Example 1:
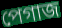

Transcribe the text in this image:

পেগাজ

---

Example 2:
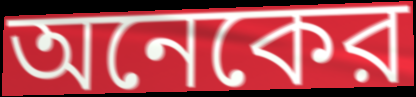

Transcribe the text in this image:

অনেকের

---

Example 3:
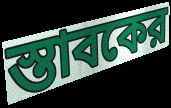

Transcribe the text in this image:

স্তাবকের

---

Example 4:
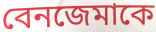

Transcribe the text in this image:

বেনজেমাকে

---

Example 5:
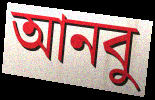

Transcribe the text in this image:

আনবু